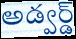
అడ్వర్డ్